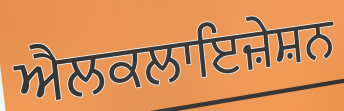
ਐਲਕਲਾਇਜ਼ੇਸ਼ਨ